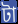
টা